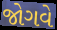
જોગવે